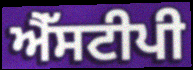
ਐੱਸਟੀਪੀ